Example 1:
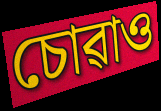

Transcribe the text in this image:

চোৱাও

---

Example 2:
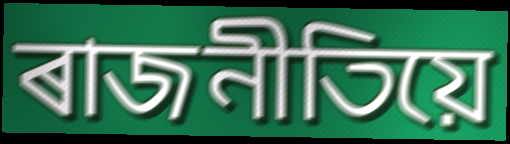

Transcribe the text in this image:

ৰাজনীতিয়ে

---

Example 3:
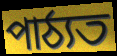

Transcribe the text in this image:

পাঠ্যত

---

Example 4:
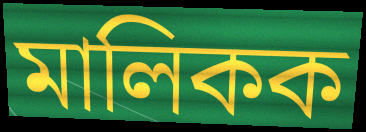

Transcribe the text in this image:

মালিকক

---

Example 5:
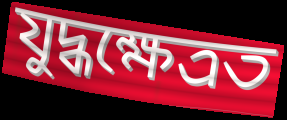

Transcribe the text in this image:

যুদ্ধক্ষেত্ৰত